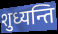
शुध्यन्ति